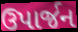
ઉપાર્જન